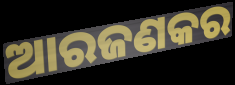
ଆରଜଣକର